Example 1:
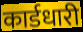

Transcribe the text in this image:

कार्डधारी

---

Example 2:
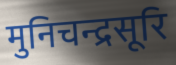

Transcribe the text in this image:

मुनिचन्द्रसूरि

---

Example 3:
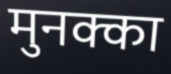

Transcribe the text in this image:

मुनक्का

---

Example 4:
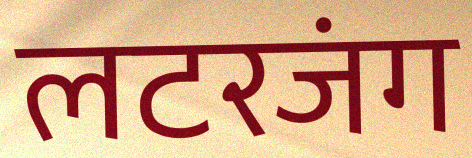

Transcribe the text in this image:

लटरजंग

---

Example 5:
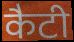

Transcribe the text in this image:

कैटी